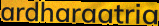
ardharaatria